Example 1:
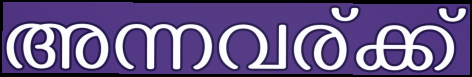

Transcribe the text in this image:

അന്നവര്ക്ക്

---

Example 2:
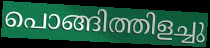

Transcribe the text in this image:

പൊങ്ങിത്തിളച്ചു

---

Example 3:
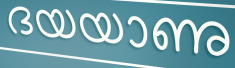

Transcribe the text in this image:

ദയയാണു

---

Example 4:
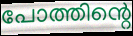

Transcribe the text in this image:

പോത്തിന്റെ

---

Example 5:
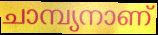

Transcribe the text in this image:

ചാമ്പ്യനാണ്